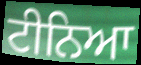
ਟੀਨਿਆ